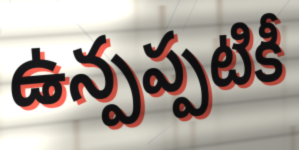
ఉన్పప్పటికీ